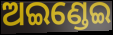
ଅଇଣ୍ଡେଇ